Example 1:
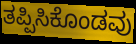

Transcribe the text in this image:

ತಪ್ಪಿಸಿಕೊಂಡವು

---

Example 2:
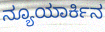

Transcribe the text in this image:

ನ್ಯೂಯಾರ್ಕಿನ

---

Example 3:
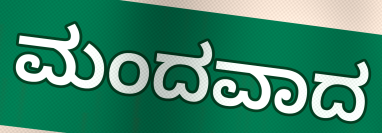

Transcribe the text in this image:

ಮಂದವಾದ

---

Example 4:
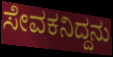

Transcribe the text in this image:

ಸೇವಕನಿದ್ದನು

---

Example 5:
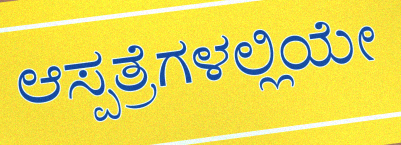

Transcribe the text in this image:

ಆಸ್ಪತ್ರೆಗಳಲ್ಲಿಯೇ